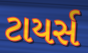
ટાયર્સ